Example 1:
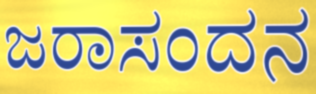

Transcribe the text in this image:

ಜರಾಸಂದನ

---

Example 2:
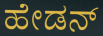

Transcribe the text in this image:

ಹೇಡನ್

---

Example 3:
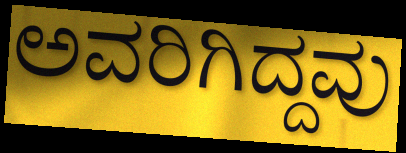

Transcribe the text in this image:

ಅವರಿಗಿದ್ದವು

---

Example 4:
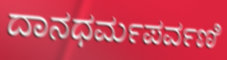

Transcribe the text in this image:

ದಾನಧರ್ಮಪರ್ವಣಿ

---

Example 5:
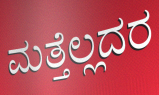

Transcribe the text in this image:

ಮತ್ತೆಲ್ಲದರ